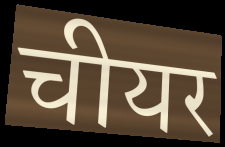
चीयर